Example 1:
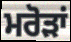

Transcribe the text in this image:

ਮਰੋੜਾਂ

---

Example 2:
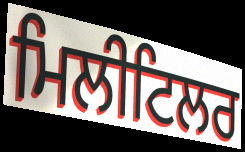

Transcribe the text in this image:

ਮਿਲੀਟਿਲਰ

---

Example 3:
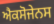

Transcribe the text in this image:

ਐਕਸੋਜੇਨਸ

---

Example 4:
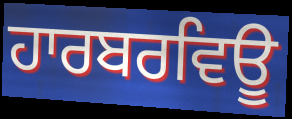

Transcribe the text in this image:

ਹਾਰਬਰਵਿਊ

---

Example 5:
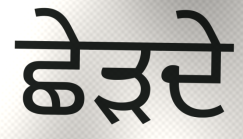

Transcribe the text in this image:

ਛੇੜਦੇ